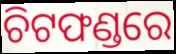
ଚିଟଫଣ୍ଡରେ